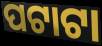
ପଟାଟା